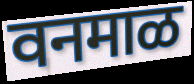
वनमाळ